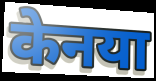
केनया